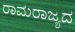
ರಾಮರಾಜ್ಯದ